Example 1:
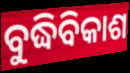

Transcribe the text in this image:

ବୁଦ୍ଧିବିକାଶ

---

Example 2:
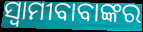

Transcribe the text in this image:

ସ୍ଵାମୀବାବାଙ୍କର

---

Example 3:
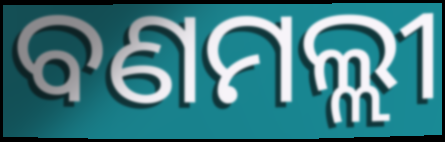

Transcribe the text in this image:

ବଣମଲ୍ଲୀ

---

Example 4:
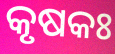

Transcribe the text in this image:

କୃଷକଃ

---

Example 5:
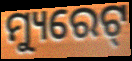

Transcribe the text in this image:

ମ୍ୟୁରେଟ୍